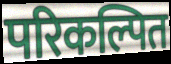
परिकल्पित